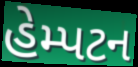
હેમ્પટન